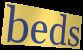
beds